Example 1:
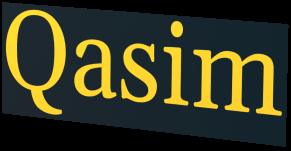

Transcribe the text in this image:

Qasim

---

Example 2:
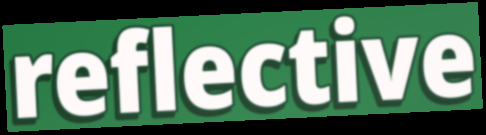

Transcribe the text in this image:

reflective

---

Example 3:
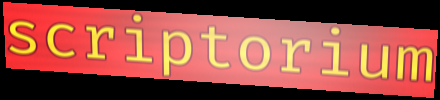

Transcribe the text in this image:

scriptorium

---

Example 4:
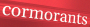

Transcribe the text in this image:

cormorants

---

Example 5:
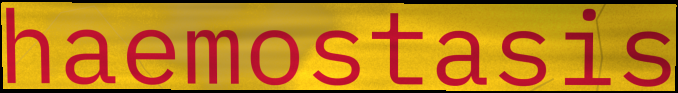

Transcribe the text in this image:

haemostasis